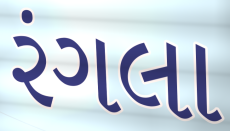
રંગલા